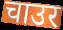
चाउर